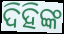
ଦିହିଙ୍କ